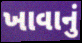
ખાવાનું